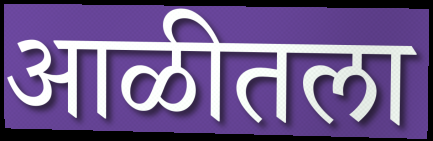
आळीतला